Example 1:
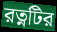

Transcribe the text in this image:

রত্নটির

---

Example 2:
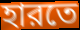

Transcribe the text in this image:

হারতে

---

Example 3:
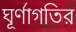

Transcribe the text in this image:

ঘূর্ণাগতির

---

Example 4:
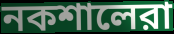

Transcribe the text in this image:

নকশালেরা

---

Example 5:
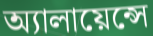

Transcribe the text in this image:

অ্যালায়েন্সে